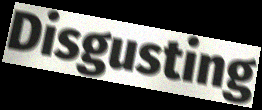
Disgusting